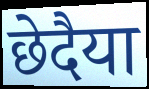
छेदैया